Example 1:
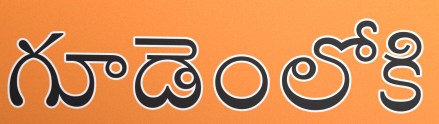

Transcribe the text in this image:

గూడెంలోకి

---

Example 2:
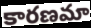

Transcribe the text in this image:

కారణమా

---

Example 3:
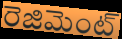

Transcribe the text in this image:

రెజిమెంట్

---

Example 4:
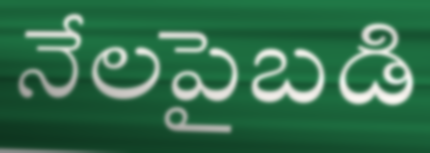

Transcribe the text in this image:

నేలపైబడి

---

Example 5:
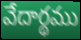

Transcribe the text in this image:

వేదార్థము